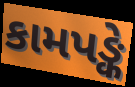
કામપઙ્કે